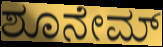
ಶೂನೇಮ್